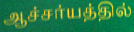
ஆச்சர்யத்தில்